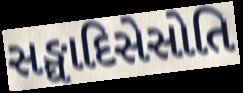
સઙ્ઘાદિસેસોતિ